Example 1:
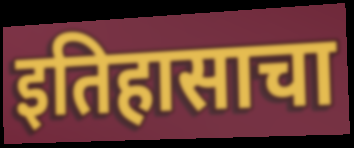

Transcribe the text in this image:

इतिहासाचा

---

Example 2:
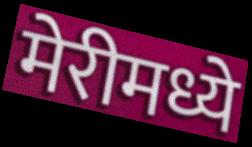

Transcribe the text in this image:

मेरीमध्ये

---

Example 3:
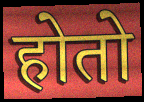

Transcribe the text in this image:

होतो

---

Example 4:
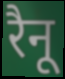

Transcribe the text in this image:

रैनू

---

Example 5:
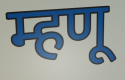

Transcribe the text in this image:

म्हणू